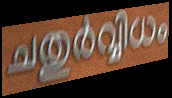
ചതുർവ്വിധം